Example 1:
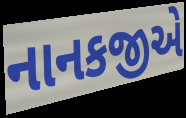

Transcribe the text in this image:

નાનકજીએ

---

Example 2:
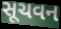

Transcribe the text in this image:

સૂચવન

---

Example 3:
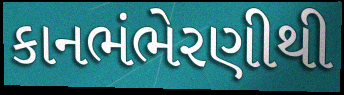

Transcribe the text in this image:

કાનભંભેરણીથી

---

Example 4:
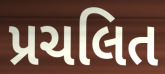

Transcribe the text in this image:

પ્રચલિત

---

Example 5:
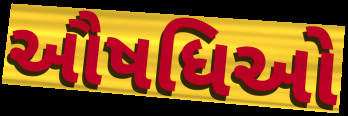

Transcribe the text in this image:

ઔષધિઓ